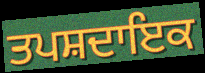
ਤਪਸ਼ਦਾਇਕ